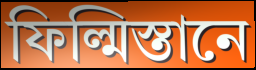
ফিল্মিস্তানে